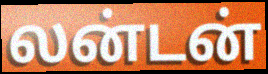
லன்டன்